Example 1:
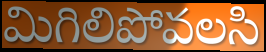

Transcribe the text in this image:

మిగిలిపోవలసి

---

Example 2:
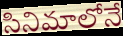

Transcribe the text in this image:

సినిమాలోనే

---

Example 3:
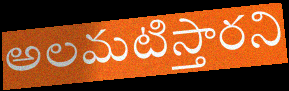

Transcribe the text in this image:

అలమటిస్తారని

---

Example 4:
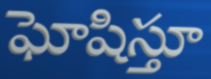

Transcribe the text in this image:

ఘోషిస్తూ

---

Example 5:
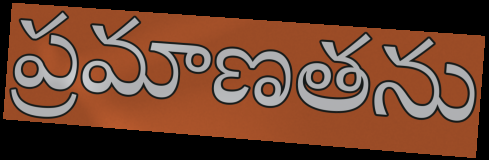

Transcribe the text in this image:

ప్రమాణతను